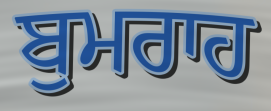
ਬੁਮਰਾਹ